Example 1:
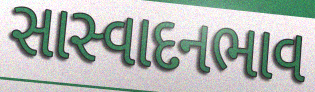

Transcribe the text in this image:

સાસ્વાદનભાવ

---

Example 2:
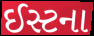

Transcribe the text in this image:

ઈસ્ટના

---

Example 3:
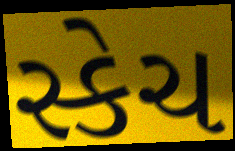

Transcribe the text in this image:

સ્કેચ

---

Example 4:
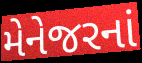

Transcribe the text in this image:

મેનેજરનાં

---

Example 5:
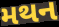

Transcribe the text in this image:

મથન